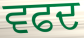
ਵਫਦ